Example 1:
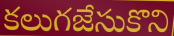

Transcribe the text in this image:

కలుగజేసుకొని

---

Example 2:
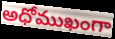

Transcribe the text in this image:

అధోముఖంగా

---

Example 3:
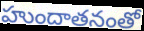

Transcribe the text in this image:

హుందాతనంతో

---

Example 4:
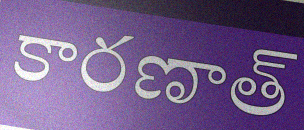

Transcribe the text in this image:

కారణాత్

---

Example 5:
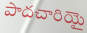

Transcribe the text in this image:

పాదచారియై